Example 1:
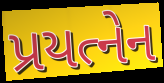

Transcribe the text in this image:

પ્રયત્નેન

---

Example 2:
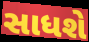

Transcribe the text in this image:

સાધશે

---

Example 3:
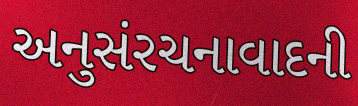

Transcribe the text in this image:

અનુસંરચનાવાદની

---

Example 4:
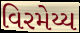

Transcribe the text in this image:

વિરમેય્ય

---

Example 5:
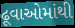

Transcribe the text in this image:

ઢૂવાઓમાંથી